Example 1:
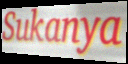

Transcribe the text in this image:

Sukanya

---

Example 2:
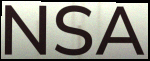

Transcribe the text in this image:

NSA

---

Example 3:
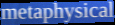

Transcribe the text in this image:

metaphysical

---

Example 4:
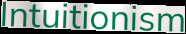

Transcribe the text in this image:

Intuitionism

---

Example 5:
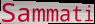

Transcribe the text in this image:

Sammati